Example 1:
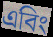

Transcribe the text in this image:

এবিং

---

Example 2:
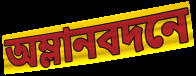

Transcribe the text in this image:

অম্লানবদনে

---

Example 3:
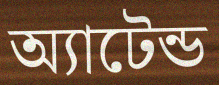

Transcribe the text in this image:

অ্যাটেন্ড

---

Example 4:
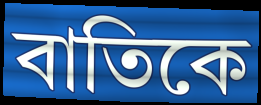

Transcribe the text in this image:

বাতিকে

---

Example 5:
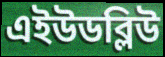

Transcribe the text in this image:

এইউডব্লিউ